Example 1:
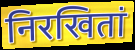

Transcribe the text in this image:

निरखितां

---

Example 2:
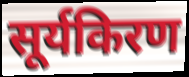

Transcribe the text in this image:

सूर्यकिरण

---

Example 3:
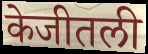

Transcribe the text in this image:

केजीतली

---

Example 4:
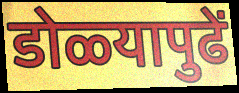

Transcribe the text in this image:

डोळ्यापुढें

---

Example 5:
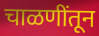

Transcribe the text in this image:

चाळणींतून